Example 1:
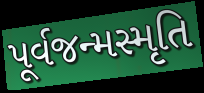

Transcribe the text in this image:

પૂર્વજન્મસ્મૃતિ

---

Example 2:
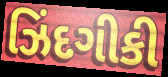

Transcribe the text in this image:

ઝિંદગીકી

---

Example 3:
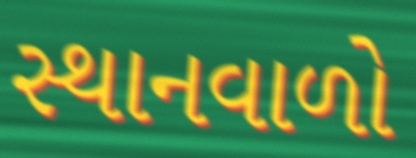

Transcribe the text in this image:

સ્થાનવાળો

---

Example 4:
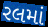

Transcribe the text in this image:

રલમાં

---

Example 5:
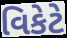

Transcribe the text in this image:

વિકેટે